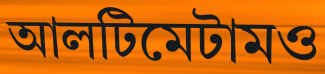
আলটিমেটামও